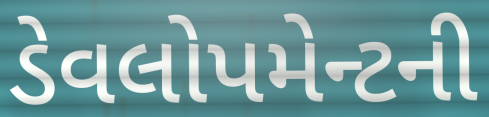
ડેવલોપમેન્ટની